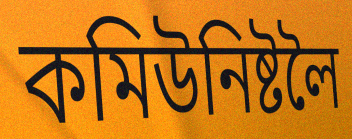
কমিউনিষ্টলৈ